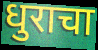
धुराचा